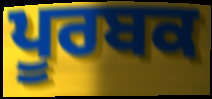
ਪੂਰਬਕ